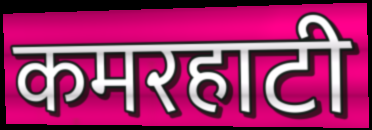
कमरहाटी